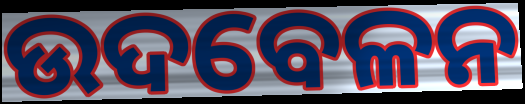
ଉଦବେଳନ